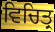
ਵਿਚਿਤ੍ਰ